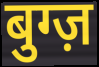
बुग्ज़